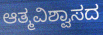
ಆತ್ಮವಿಶ್ವಾಸದ